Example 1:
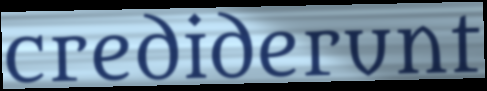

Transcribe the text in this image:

crediderunt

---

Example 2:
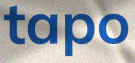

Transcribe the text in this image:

tapo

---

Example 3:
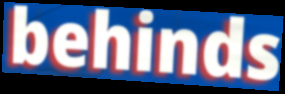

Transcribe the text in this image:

behinds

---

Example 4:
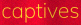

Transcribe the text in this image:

captives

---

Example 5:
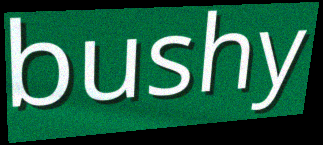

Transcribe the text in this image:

bushy